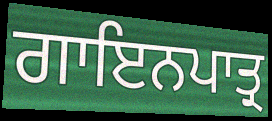
ਗਾਇਨਪਾਤ੍ਰ